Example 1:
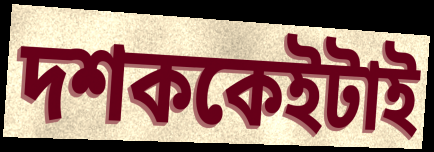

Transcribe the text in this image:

দশককেইটাই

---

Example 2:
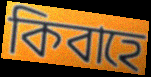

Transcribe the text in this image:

কিবাহে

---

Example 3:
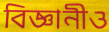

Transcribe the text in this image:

বিজ্ঞানীও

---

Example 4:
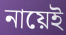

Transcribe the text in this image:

নায়েই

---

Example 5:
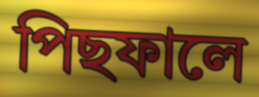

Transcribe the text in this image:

পিছফালে